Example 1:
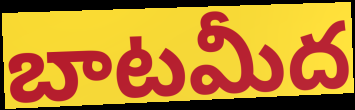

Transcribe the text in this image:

బాటమీద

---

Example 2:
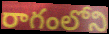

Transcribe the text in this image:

రాగంలోని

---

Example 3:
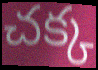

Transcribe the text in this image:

చక్క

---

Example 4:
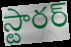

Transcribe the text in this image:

స్టారర్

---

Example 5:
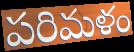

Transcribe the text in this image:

పరిమళం